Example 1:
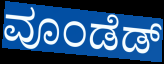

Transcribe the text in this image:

ವೂಂಡೆಡ್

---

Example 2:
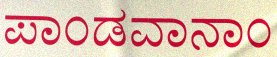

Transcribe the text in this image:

ಪಾಂಡವಾನಾಂ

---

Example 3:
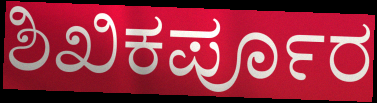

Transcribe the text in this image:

ಶಿಖಿಕರ್ಪೂರ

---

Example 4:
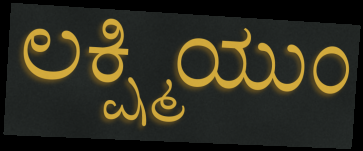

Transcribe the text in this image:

ಲಕ್ಷ್ಮಿಯುಂ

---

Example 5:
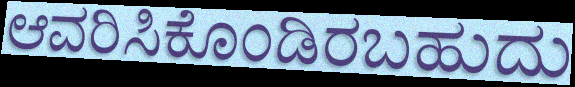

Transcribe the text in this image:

ಆವರಿಸಿಕೊಂಡಿರಬಹುದು